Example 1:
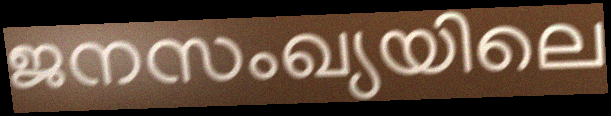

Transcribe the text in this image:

ജനസംഖ്യയിലെ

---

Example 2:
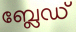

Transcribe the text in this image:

ബ്ലേഡ്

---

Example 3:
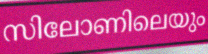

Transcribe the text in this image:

സിലോണിലെയും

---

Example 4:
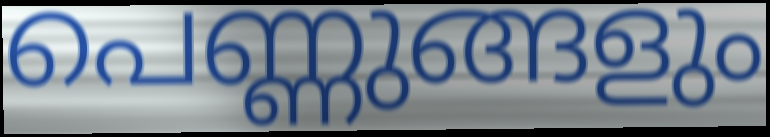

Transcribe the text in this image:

പെണ്ണുങ്ങളും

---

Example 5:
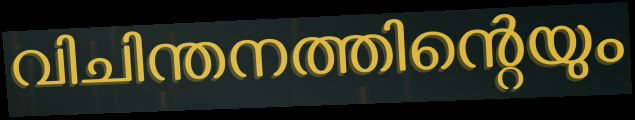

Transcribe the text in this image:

വിചിന്തനത്തിന്റെയും